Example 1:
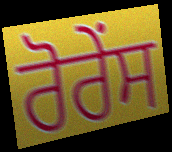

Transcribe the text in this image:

ਰੋਰੇਂਸ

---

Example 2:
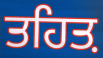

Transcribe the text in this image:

ਤਹਿਤ਼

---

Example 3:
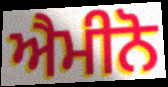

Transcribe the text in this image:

ਐਮੀਨੋ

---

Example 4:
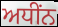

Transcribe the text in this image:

ਅਧੀਂਨ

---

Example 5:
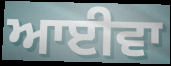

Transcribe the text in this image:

ਆਈਵਾ